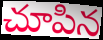
చూపిన